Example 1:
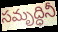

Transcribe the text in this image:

సమృద్ధినీ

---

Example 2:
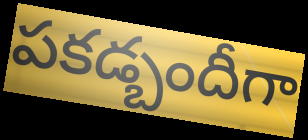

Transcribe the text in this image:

పకడ్బందీగా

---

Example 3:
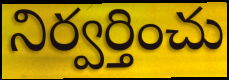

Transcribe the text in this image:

నిర్వర్తించు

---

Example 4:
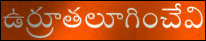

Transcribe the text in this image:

ఉర్రూతలూగించేవి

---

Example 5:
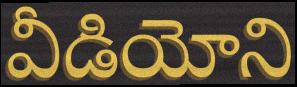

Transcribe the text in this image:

వీడియోని